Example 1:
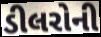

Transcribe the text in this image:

ડીલરોની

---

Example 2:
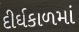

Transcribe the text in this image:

દીર્ઘકાળમાં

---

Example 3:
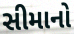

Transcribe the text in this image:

સીમાનો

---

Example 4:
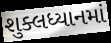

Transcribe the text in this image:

શુક્લધ્યાનમાં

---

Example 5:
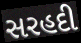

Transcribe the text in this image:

સરહદી